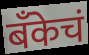
बॅंकेचं